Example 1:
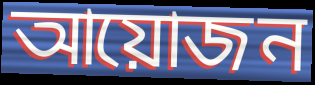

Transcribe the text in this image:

আয়োজন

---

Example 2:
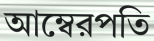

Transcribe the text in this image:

আম্বেরপতি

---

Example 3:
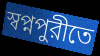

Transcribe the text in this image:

স্বপ্নপুরীতে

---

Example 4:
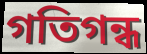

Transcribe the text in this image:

গতিগন্ধ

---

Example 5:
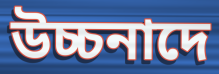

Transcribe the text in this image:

উচ্চনাদে